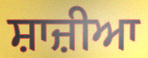
ਸ਼ਾਜ਼ੀਆ